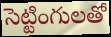
సెట్టింగులతో